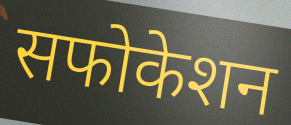
सफोकेशन